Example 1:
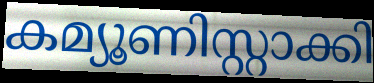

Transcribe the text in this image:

കമ്യൂണിസ്റ്റാക്കി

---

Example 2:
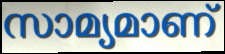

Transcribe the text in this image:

സാമ്യമാണ്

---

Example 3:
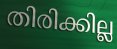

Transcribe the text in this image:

തിരിക്കില്ല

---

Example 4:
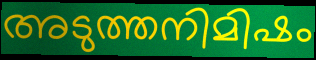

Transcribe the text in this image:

അടുത്തനിമിഷം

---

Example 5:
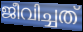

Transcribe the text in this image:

ജീവിച്ചത്